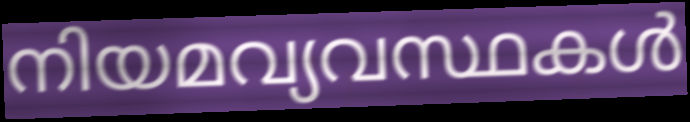
നിയമവ്യവസ്ഥകൾ